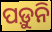
ପଡ଼ୁନି